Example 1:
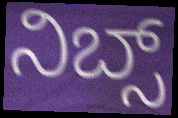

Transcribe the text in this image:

ನಿಬ್ಸ್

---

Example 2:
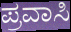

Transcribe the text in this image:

ಪ್ರವಾಸಿ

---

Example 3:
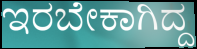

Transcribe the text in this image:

ಇರಬೇಕಾಗಿದ್ದ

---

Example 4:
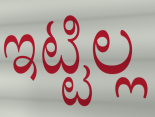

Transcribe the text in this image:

ಇಟ್ಟಿಲ್ಲ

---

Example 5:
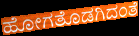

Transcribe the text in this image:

ಹೋಗತೊಡಗಿದಂತೆ